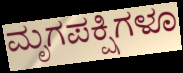
ಮೃಗಪಕ್ಷಿಗಳೂ